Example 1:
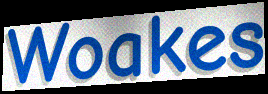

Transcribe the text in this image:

Woakes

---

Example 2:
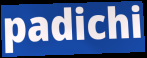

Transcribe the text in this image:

padichi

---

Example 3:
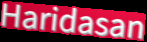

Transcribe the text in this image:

Haridasan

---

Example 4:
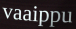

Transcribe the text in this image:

vaaippu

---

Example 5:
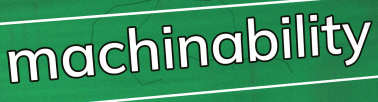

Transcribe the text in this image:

machinability